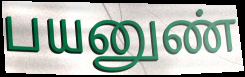
பயனுண்